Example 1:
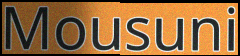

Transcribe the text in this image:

Mousuni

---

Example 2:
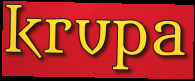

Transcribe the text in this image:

krupa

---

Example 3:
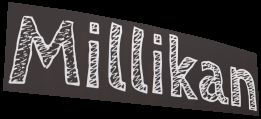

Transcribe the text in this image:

Millikan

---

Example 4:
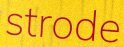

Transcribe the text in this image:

strode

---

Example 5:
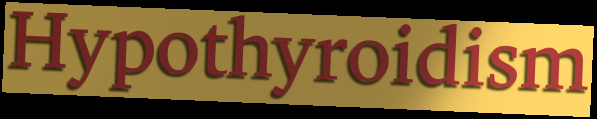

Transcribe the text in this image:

Hypothyroidism